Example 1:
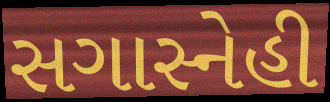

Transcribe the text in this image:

સગાસ્નેહી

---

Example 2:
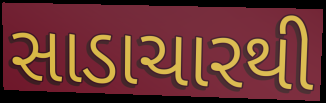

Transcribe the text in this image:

સાડાચારથી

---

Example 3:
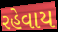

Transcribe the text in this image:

રહેવાય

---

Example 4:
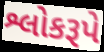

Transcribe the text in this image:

શ્લોકરૂપે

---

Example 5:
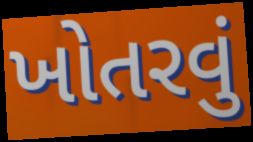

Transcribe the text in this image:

ખોતરવું